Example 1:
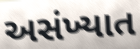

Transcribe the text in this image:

અસંખ્યાત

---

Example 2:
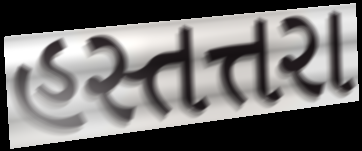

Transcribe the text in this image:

હસ્તત્તરા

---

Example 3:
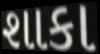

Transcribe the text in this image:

શાકા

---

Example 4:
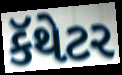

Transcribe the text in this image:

કૅથેટર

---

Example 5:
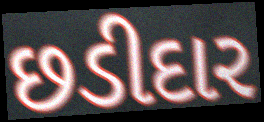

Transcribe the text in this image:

છડીદાર